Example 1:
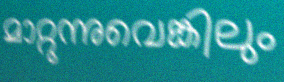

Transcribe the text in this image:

മാറ്റുന്നുവെങ്കിലും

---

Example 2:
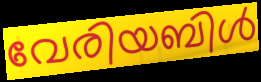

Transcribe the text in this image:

വേരിയബിൾ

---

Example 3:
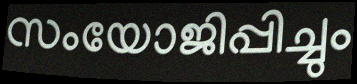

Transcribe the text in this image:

സംയോജിപ്പിച്ചും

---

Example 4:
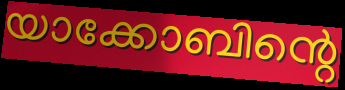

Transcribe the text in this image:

യാക്കോബിന്റെ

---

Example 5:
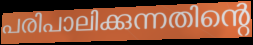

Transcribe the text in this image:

പരിപാലിക്കുന്നതിന്റെ